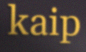
kaip